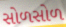
સોળસોળ